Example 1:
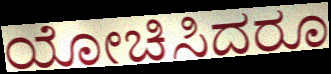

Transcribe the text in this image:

ಯೋಚಿಸಿದರೂ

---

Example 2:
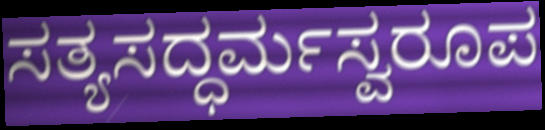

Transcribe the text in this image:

ಸತ್ಯಸದ್ಧರ್ಮಸ್ವರೂಪ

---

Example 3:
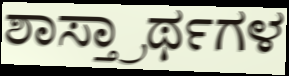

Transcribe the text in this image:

ಶಾಸ್ತ್ರಾರ್ಥಗಳ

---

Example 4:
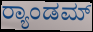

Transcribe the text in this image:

ರ್‍ಯಾಂಡಮ್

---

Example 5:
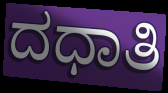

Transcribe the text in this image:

ದಧಾತಿ